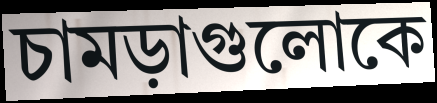
চামড়াগুলোকে